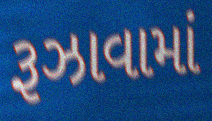
રૂઝાવામાં